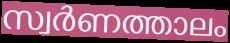
സ്വർണത്താലം